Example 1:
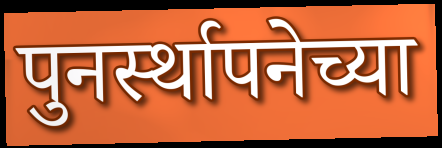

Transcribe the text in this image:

पुनर्स्थापनेच्या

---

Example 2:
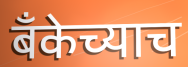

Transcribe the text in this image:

बँकेच्याच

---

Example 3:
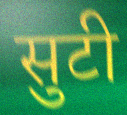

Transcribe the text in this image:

सुटी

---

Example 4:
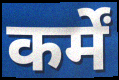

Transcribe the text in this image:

कर्में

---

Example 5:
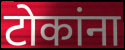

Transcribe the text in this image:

टोकांना